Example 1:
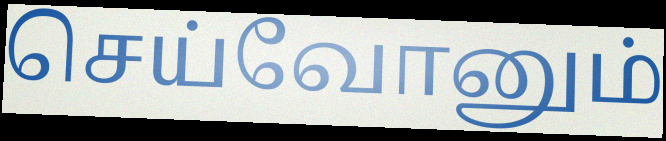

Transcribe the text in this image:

செய்வோனும்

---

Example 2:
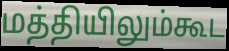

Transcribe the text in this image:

மத்தியிலும்கூட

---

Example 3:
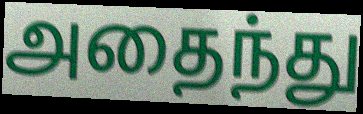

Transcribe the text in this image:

அதைந்து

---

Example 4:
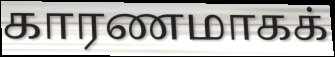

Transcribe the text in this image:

காரணமாகக்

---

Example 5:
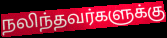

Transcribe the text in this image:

நலிந்தவர்களுக்கு